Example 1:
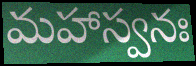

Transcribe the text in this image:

మహాస్వనః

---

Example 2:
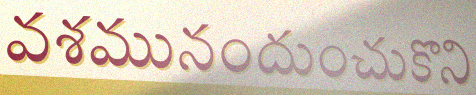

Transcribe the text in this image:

వశమునందుంచుకొని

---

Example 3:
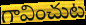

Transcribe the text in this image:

గావించుట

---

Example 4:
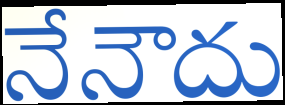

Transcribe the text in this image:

నేనౌదు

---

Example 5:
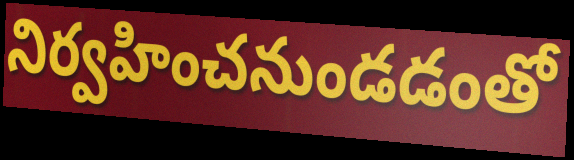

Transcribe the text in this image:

నిర్వహించనుండడంతో